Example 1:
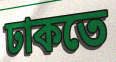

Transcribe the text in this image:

ঢাকতে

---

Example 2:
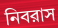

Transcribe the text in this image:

নিবরাস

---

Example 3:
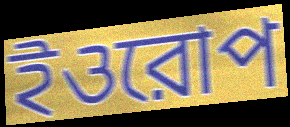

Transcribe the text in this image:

ইওরোপ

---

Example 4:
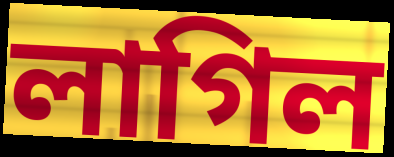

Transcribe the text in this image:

লাগিল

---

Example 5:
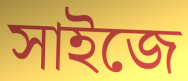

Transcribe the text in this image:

সাইজে